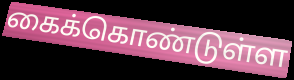
கைக்கொண்டுள்ள